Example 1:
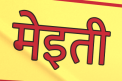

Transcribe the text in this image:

मेइती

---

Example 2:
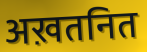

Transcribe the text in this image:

अख़तनित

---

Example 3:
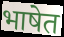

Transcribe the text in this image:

भाषेत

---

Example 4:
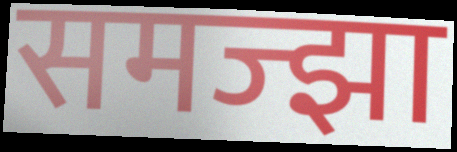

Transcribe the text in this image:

समज्झा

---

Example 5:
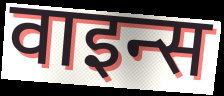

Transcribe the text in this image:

वाइन्स